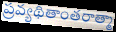
ప్రవ్యథితాంతరాత్మా